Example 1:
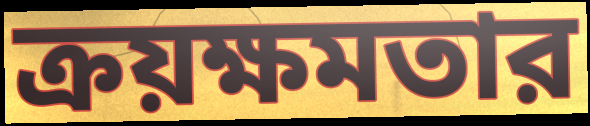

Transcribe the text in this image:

ক্রয়ক্ষমতার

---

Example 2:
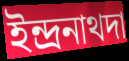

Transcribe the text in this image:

ইন্দ্রনাথদা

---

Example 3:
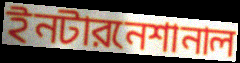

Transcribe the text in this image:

ইনটারনেশানাল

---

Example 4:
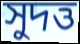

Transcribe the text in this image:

সুদত্ত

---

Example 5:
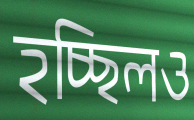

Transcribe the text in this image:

হচ্ছিলও